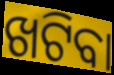
ଖଟିବା